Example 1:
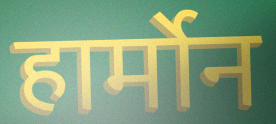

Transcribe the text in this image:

हार्मोन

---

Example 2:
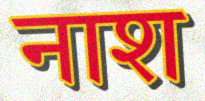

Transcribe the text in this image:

नाश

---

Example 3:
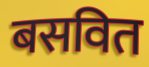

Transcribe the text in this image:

बसवित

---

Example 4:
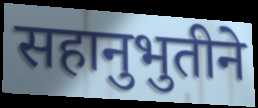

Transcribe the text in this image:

सहानुभुतीने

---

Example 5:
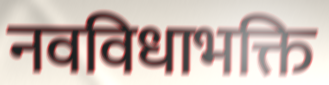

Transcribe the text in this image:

नवविधाभक्ति